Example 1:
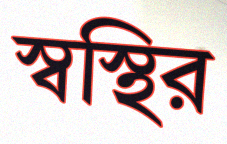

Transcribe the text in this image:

স্বস্থির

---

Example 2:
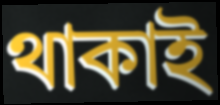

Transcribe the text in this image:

থাকাই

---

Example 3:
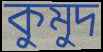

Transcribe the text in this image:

কুমুদ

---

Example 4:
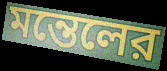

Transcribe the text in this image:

মন্তেলের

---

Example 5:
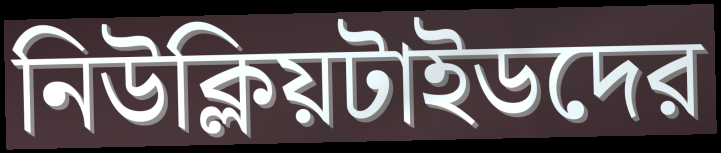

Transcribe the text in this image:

নিউক্লিয়টাইডদের